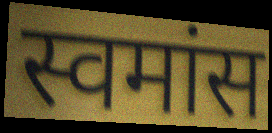
स्वमांस